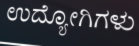
ಉದ್ಯೋಗಿಗಳು